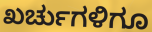
ಖರ್ಚುಗಳಿಗೂ